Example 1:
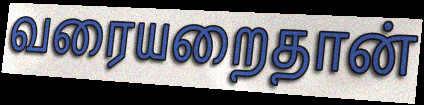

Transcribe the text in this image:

வரையறைதான்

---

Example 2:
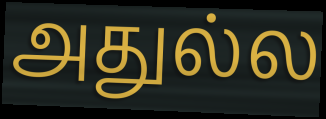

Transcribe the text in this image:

அதுல்ல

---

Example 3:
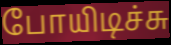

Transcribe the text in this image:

போயிடிச்சு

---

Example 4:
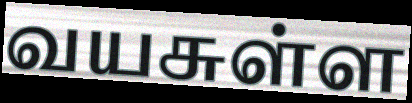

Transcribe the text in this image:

வயசுள்ள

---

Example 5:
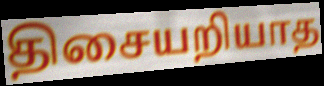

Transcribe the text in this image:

திசையறியாத